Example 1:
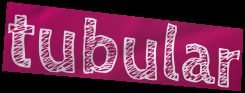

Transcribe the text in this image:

tubular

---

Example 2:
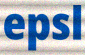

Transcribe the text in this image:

epsl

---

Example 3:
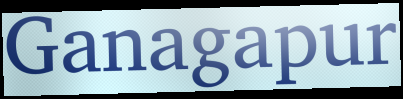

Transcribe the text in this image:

Ganagapur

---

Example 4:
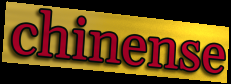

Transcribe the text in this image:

chinense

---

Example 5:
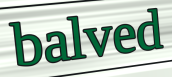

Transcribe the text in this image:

balved